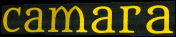
camara